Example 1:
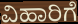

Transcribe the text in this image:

ವಿಹಾರಿಗೆ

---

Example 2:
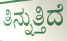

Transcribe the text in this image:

ತಿನ್ನುತ್ತಿದೆ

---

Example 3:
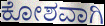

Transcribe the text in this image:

ಕೋಶವಾಗಿ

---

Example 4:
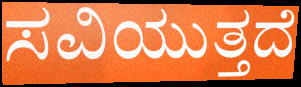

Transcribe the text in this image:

ಸವಿಯುತ್ತದೆ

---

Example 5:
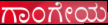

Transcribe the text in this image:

ಗಾಂಗೇಯ